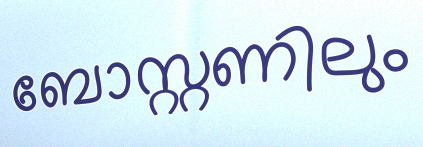
ബോസ്റ്റണിലും